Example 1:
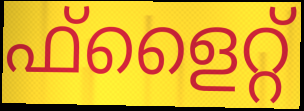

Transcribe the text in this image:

ഫ്ളൈറ്റ്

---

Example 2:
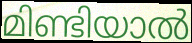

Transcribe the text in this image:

മിണ്ടിയാൽ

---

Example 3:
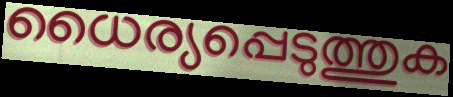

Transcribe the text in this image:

ധൈര്യപ്പെടുത്തുക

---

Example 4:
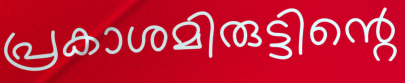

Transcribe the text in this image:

പ്രകാശമിരുട്ടിന്റെ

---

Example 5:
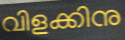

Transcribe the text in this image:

വിളക്കിനു